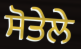
ਸੋਤੇਲੇ